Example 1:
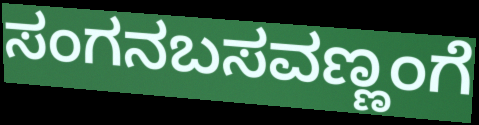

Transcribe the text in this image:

ಸಂಗನಬಸವಣ್ಣಂಗೆ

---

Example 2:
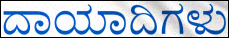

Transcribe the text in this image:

ದಾಯಾದಿಗಳು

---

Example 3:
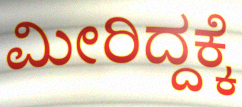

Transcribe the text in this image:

ಮೀರಿದ್ದಕ್ಕೆ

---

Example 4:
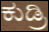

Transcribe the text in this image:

ಕುಡ್ರಿ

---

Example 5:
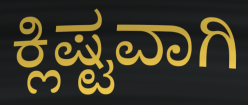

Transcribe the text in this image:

ಕ್ಲಿಷ್ಟವಾಗಿ